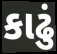
કાઢું